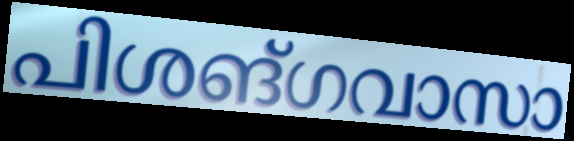
പിശങ്ഗവാസാ